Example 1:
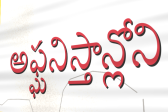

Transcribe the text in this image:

అఫ్ఘనిస్తాన్లోని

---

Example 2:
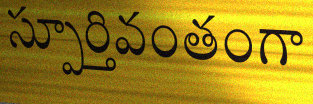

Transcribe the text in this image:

స్పూర్తివంతంగా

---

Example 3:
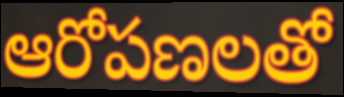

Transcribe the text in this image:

ఆరోపణలతో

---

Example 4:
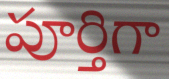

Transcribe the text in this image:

పూర్తిగా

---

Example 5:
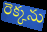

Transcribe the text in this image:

రెక్కను